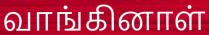
வாங்கினாள்